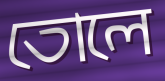
তোলে